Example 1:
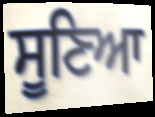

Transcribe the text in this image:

ਸੂਣਿਆ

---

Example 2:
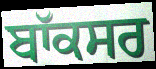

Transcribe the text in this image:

ਬਾੱਕਸਰ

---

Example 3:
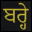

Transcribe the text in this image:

ਬਰ੍ਹੇ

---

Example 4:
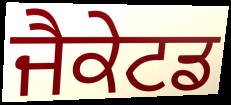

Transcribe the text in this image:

ਜੈਕੇਟਡ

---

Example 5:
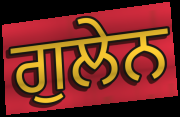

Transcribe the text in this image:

ਗੁਲੇਨ